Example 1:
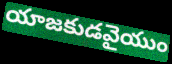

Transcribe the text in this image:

యాజకుడవైయుం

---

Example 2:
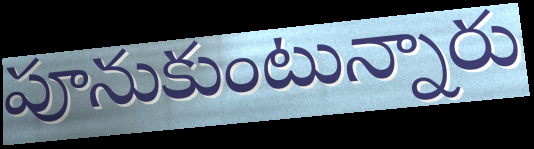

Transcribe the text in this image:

పూనుకుంటున్నారు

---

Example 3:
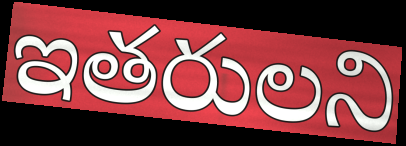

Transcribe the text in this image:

ఇతరులని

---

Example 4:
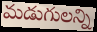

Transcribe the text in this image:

మడుగులన్ని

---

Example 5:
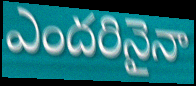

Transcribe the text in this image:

ఎందరినైనా